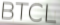
BTCL